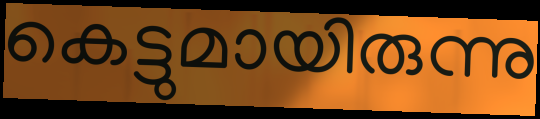
കെട്ടുമായിരുന്നു